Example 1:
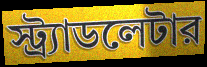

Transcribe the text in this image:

স্ট্র্যাডলেটার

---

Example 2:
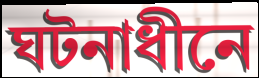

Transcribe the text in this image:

ঘটনাধীনে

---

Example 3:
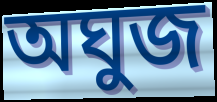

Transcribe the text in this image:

অঘুজ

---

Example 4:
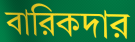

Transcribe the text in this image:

বারিকদার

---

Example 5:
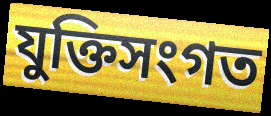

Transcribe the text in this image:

যুক্তিসংগত